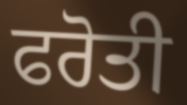
ਫਰੋਤੀ